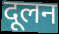
दूलन